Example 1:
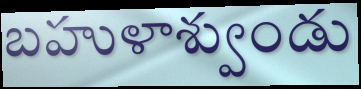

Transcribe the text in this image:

బహుళాశ్వుండు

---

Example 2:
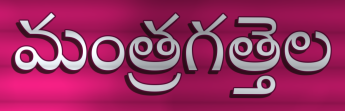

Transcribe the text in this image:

మంత్రగత్తెల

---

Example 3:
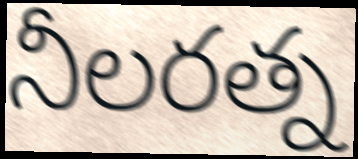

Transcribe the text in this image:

నీలరత్న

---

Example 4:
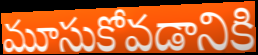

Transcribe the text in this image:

మూసుకోవడానికి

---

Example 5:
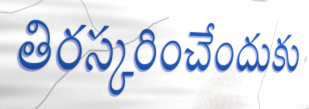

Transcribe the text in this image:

తిరస్కరించేందుకు